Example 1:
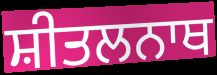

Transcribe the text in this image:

ਸ਼ੀਤਲਨਾਥ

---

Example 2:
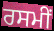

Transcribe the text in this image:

ਰਸਮੀਂ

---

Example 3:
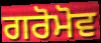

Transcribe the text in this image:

ਗਰੋਮੋਵ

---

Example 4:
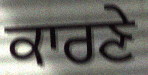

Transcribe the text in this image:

ਕਾਰਣੇ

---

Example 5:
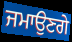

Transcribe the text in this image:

ਜਮਾਉਣਗੇ